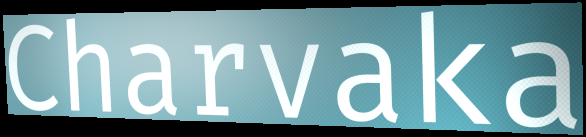
Charvaka